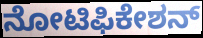
ನೋಟಿಫಿಕೇಶನ್